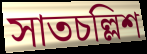
সাতচল্লিশ